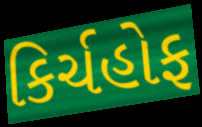
કિર્ચહોફ